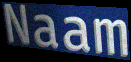
Naam